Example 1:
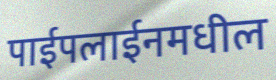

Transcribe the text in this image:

पाईपलाईनमधील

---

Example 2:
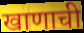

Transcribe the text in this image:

खाणाची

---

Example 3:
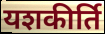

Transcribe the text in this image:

यशकीर्ति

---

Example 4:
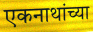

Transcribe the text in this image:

एकनाथांच्या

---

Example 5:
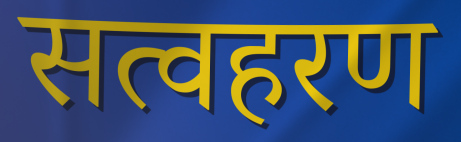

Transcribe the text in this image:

सत्वहरण